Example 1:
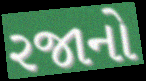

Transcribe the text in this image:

રજાનો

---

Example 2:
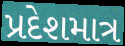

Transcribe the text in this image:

પ્રદેશમાત્ર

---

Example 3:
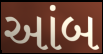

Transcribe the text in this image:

આંબ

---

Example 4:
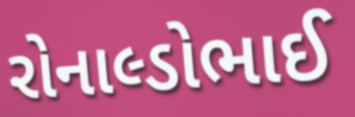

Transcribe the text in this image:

રોનાલ્ડોભાઈ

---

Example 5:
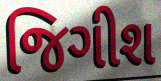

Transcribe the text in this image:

જિગીશ